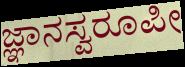
ಜ್ಞಾನಸ್ವರೂಪೀ